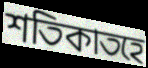
শতিকাতহে